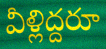
వీళ్లిద్దరూ